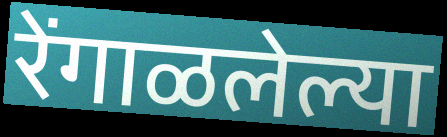
रेंगाळलेल्या